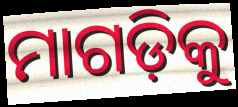
ମାଗଡ଼ିକୁ